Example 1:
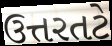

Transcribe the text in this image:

ઉત્તરતટે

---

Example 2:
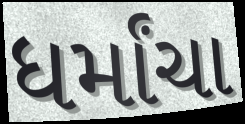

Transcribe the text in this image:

ધર્માંચા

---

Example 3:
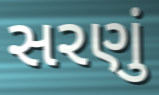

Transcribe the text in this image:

સરણું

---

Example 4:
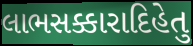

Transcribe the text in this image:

લાભસક્કારાદિહેતુ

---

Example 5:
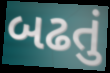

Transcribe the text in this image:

બઢતું